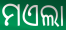
ମଏଲା